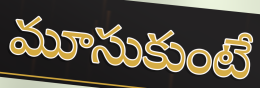
మూసుకుంటే